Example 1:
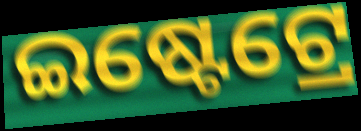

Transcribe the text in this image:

ଇଷ୍ଟେଟ୍ରେ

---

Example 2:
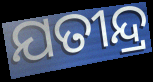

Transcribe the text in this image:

ଯତୀନ୍ଦ୍ର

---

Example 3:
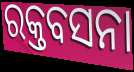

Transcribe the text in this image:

ରକ୍ତବସନା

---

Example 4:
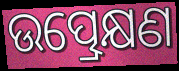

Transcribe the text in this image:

ଉତ୍ପ୍ରେକ୍ଷଣ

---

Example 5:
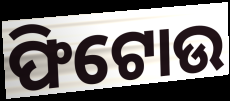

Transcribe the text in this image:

ଫିଟୋଉ